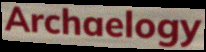
Archaelogy